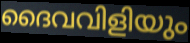
ദൈവവിളിയും